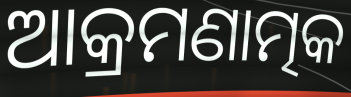
ଆକ୍ରମଣାତ୍ମକ